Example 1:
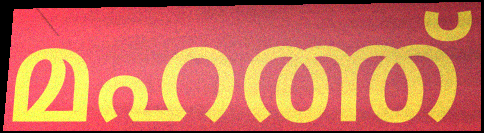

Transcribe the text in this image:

മഹത്ത്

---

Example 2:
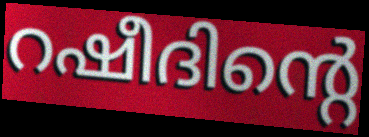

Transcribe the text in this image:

റഷീദിന്റെ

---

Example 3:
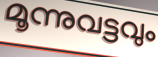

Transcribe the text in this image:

മൂന്നുവട്ടവും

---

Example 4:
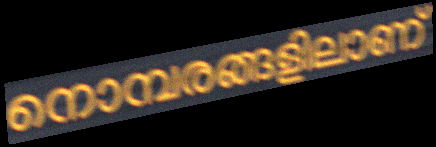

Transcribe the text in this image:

നൊമ്പരങ്ങളിലാണ്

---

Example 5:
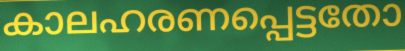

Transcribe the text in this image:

കാലഹരണപ്പെട്ടതോ